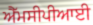
ਐੱਮਸੀਪੀਆਈ